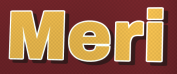
Meri